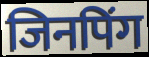
जिनपिंग